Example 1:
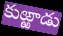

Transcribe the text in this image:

కుఱ్ఱాడు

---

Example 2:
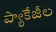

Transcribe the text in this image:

ప్యాకేజీల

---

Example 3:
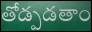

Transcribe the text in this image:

తోడ్పడతాం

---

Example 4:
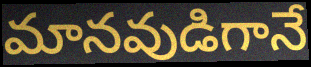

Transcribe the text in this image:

మానవుడిగానే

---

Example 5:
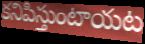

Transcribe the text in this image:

కనిపిస్తుంటాయట